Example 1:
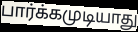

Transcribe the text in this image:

பார்க்கமுடியாது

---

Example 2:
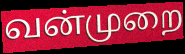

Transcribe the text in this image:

வன்முறை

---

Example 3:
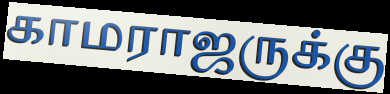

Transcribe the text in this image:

காமராஜருக்கு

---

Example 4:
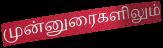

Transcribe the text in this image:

முன்னுரைகளிலும்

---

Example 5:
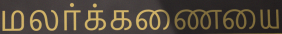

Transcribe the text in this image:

மலர்க்கணையை